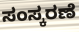
ಸಂಸ್ಕರಣೆ